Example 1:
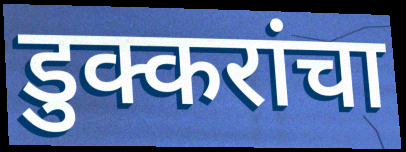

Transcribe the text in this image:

डुक्करांचा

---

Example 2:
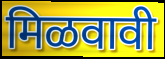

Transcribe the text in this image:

मिळवावी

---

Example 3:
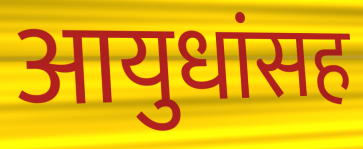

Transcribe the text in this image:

आयुधांसह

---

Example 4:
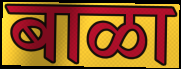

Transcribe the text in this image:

बाळा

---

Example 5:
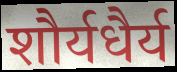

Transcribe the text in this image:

शौर्यधैर्य